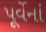
પૂર્વેનાં